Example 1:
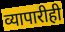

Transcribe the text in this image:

व्यापारीही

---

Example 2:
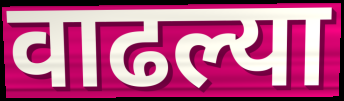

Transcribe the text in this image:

वाढल्या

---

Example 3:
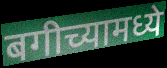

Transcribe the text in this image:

बगीच्यामध्ये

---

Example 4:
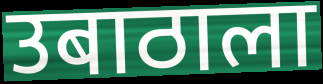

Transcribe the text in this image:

उबाठाला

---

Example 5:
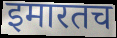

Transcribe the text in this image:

इमारतच